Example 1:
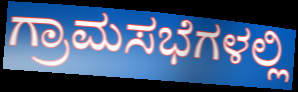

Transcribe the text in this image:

ಗ್ರಾಮಸಭೆಗಳಲ್ಲಿ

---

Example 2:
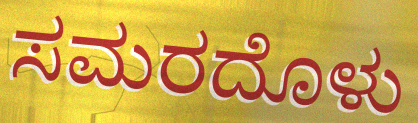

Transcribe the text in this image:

ಸಮರದೊಳು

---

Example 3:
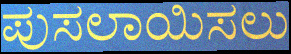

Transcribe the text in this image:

ಪುಸಲಾಯಿಸಲು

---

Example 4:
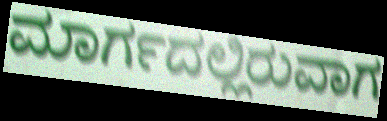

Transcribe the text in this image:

ಮಾರ್ಗದಲ್ಲಿರುವಾಗ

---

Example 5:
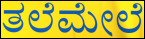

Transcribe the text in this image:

ತಲೆಮೇಲೆ